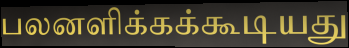
பலனளிக்கக்கூடியது